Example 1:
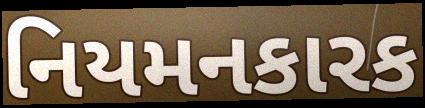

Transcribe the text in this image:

નિયમનકારક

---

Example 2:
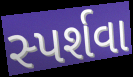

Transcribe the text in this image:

સ્પર્શવા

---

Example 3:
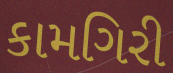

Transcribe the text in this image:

કામગિરી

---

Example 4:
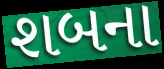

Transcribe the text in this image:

શબના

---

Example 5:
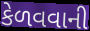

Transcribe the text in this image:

કેળવવાની